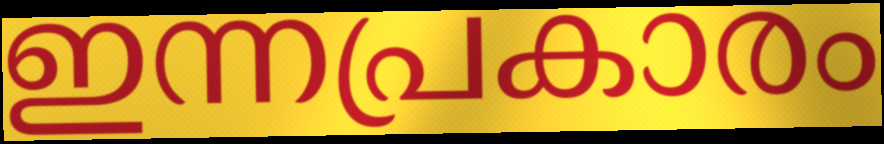
ഇന്നപ്രകാരം